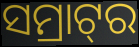
ସମ୍ରାଟ୍‌ର